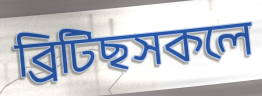
ব্ৰিটিছসকলে